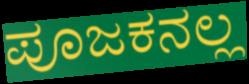
ಪೂಜಕನಲ್ಲ